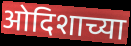
ओदिशाच्या